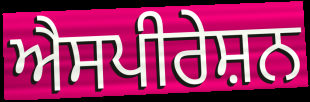
ਐਸਪੀਰੇਸ਼ਨ